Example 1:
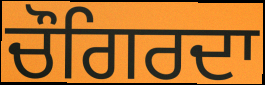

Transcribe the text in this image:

ਚੌਗਿਰਦਾ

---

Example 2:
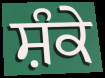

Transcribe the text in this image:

ਸ਼ੰਕੇ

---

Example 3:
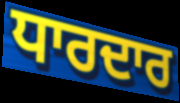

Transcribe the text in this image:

ਧਾਰਦਾਰ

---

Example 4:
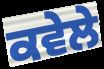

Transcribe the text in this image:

ਕਵੇਲੇ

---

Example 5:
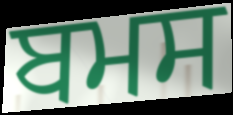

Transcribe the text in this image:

ਬਮਸ